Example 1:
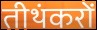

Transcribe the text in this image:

तीथंकरों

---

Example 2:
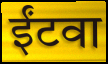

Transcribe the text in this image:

ईंटवा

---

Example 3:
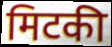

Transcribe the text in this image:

मिटकी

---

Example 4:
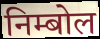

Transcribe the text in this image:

निम्बोल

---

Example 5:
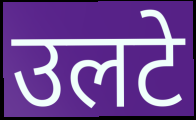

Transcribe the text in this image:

उलटे